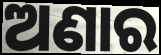
ଅଣାର